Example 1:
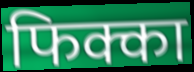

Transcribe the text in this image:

फिक्का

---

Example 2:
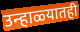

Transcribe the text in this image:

उन्हाळ्यातही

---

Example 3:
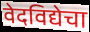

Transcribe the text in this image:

वेदविद्येचा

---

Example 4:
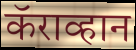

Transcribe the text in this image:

कॅराव्हान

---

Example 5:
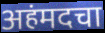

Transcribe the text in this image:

अहंमदचा